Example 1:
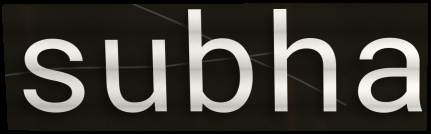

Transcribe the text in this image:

subha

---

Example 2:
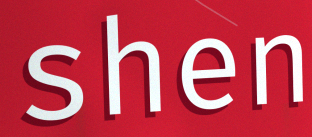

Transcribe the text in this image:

shen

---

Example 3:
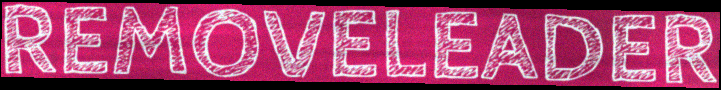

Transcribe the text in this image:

REMOVELEADER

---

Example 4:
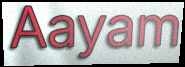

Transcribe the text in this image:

Aayam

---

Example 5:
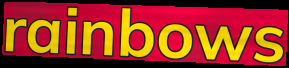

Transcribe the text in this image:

rainbows